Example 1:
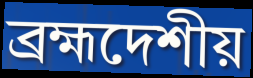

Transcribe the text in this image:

ব্রহ্মদেশীয়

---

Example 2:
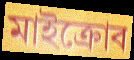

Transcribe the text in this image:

মাইক্রোব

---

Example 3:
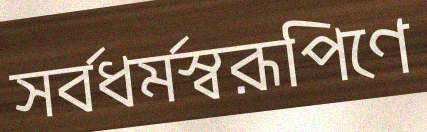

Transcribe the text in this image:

সর্বধর্মস্বরূপিণে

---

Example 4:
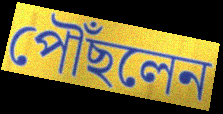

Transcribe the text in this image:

পৌঁছলেন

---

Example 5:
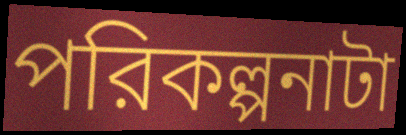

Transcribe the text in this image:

পরিকল্পনাটা